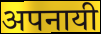
अपनायी